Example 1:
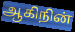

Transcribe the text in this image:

ஆகிநின்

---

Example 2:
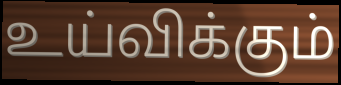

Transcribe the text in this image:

உய்விக்கும்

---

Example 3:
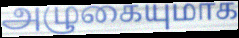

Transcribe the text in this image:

அழுகையுமாக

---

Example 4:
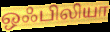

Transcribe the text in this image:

ஒஃபிலியா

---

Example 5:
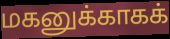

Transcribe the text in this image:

மகனுக்காகக்